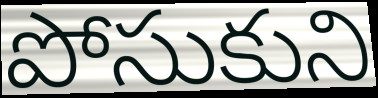
పోసుకుని